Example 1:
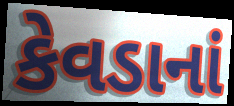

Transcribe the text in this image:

કેવડાનાં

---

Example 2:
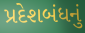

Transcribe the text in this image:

પ્રદેશબંધનું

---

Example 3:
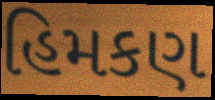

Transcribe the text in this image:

હિમકણ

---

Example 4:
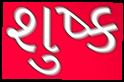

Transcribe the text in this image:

શુષ્ક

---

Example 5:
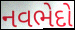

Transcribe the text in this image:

નવભેદો